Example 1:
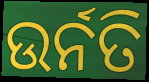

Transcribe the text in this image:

ଉର୍ନତି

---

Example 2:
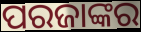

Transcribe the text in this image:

ପରଜାଙ୍କର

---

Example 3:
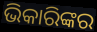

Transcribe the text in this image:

ଭିକାରିଙ୍କର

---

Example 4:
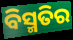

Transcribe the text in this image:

ବିସ୍ମତିର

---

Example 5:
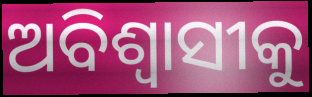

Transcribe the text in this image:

ଅବିଶ୍ୱାସୀକୁ